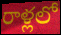
రాళ్లలో